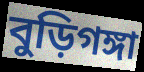
বুড়িগঙ্গা